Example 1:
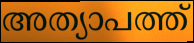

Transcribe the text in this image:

അത്യാപത്ത്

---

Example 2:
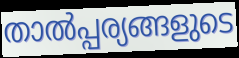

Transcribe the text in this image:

താൽപ്പര്യങ്ങളുടെ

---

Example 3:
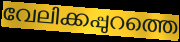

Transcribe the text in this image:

വേലിക്കപ്പുറത്തെ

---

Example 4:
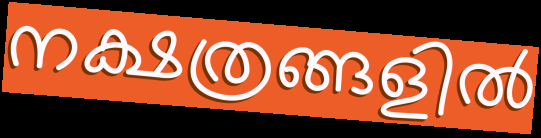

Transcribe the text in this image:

നക്ഷത്രങ്ങളിൽ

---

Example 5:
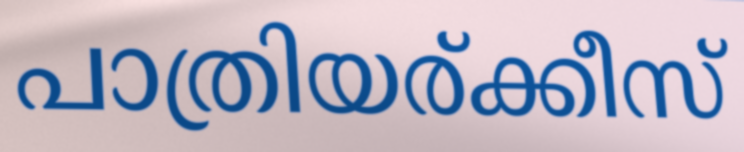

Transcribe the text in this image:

പാത്രിയര്ക്കീസ്